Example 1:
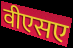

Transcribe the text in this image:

वीएसए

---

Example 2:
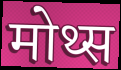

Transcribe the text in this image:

मोथ्स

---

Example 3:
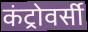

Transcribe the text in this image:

कंट्रोवर्सी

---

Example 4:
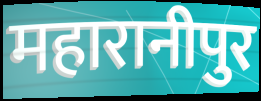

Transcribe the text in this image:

महारानीपुर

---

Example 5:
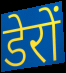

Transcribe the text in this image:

डेरों